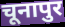
चूनापुर